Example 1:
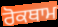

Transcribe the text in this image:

ਰੋਕਥਾਮ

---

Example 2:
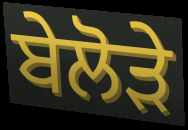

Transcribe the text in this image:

ਬੇਲੋੜੇ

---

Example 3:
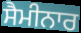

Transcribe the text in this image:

ਸੈਮੀਨਾਰ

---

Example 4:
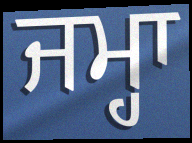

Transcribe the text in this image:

ਜਮ੍ਹਾ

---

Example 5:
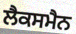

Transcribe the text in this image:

ਲੈਕਸਮੈਨ